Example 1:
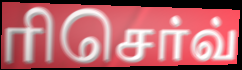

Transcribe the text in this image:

ரிசெர்வ்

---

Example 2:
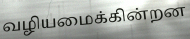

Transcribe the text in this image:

வழியமைக்கின்றன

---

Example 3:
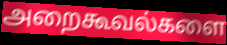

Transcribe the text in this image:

அறைகூவல்களை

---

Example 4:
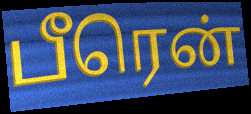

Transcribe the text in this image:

பீரென்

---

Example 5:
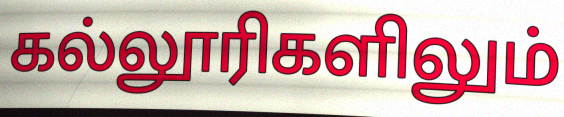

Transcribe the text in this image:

கல்லூரிகளிலும்